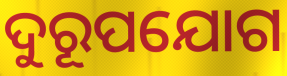
ଦୁରୂପଯୋଗ